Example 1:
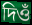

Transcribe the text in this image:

দিওঁ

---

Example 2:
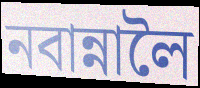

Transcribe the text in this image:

নবান্নালৈ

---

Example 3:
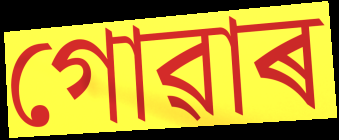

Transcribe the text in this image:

গোৱাৰ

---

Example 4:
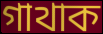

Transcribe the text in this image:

গাথাক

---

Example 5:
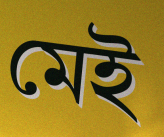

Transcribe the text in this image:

মেই